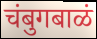
चंबुगबाळं